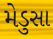
મેડુસા